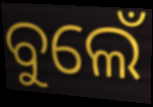
ବୁଲେଁ